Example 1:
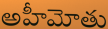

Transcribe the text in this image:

అహీమోతు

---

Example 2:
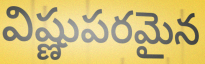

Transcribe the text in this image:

విష్ణుపరమైన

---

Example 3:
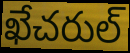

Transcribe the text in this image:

ఖేచరుల్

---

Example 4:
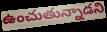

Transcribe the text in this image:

ఉంచుతున్నాడని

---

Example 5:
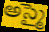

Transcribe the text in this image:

అస్మై